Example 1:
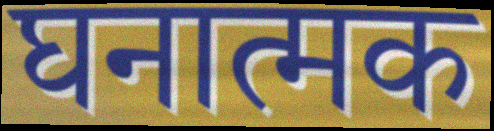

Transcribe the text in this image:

घनात्मक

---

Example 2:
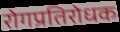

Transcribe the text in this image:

रोगप्रतिरोधक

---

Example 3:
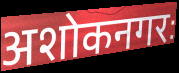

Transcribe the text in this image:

अशोकनगरः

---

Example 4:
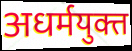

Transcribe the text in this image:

अधर्मयुक्त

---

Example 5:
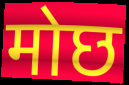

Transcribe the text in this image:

मोछ